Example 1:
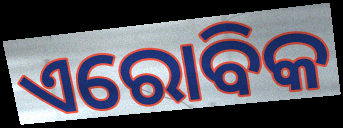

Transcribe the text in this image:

ଏରୋବିକ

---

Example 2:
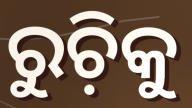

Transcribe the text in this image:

ରୁଚ଼ିକୁ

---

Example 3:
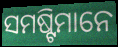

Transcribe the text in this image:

ସମଷ୍ଟିମାନେ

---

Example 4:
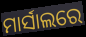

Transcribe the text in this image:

ମାର୍ସାଲରେ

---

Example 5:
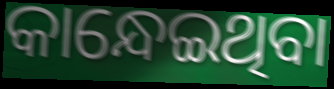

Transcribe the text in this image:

କାନ୍ଧେଇଥିବା